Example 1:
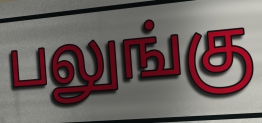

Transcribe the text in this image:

பலுங்கு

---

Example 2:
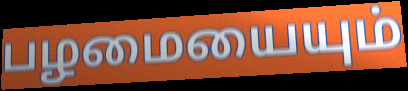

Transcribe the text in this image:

பழமையையும்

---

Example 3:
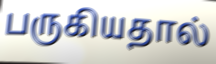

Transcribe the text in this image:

பருகியதால்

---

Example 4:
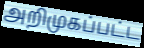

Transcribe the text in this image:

அறிமுகப்பட்ட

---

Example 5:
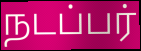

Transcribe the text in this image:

நடப்பர்